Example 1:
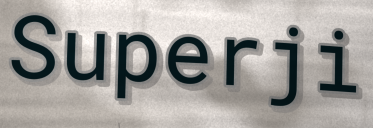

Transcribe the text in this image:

Superji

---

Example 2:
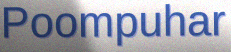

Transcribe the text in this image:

Poompuhar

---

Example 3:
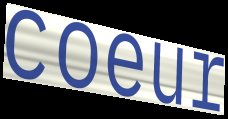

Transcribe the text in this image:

coeur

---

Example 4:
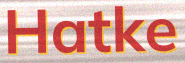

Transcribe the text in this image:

Hatke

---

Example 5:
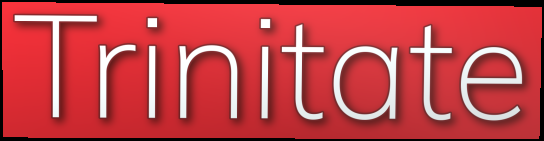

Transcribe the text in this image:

Trinitate